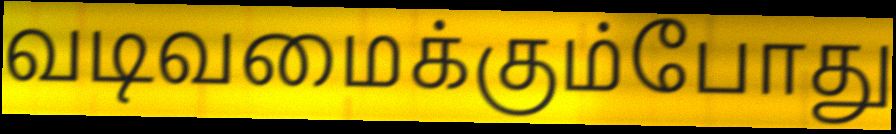
வடிவமைக்கும்போது